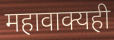
महावाक्यही